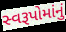
સ્વરૂપોમાંનું